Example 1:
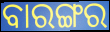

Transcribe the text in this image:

ବାରଙ୍ଗର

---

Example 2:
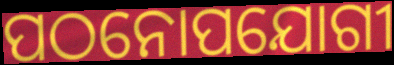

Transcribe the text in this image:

ପଠନୋପଯୋଗୀ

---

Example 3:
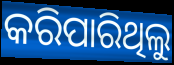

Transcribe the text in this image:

କରିପାରିଥିଲୁ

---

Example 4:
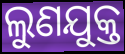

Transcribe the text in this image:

ଲୁଣଯୁକ୍ତ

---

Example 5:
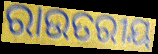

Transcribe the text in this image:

ରାଉତରୀୟ